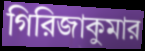
গিরিজাকুমার